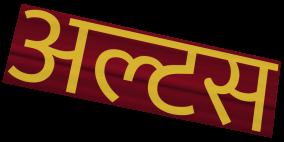
अल्टस